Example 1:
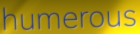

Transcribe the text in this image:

humerous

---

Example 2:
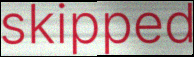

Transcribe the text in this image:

skipped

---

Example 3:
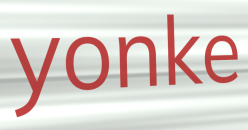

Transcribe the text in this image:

yonke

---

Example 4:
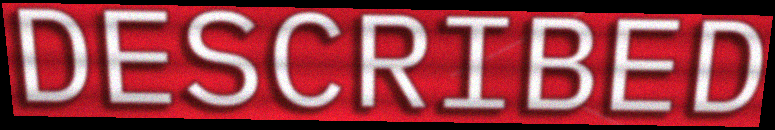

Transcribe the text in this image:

DESCRIBED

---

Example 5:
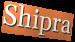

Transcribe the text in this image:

Shipra